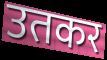
उतकर